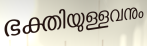
ഭക്തിയുള്ളവനും